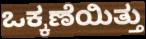
ಒಕ್ಕಣೆಯಿತ್ತು